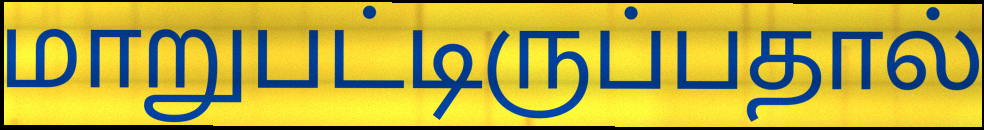
மாறுபட்டிருப்பதால்